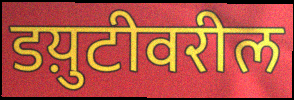
डय़ुटीवरील